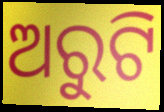
ଅରୁଟି